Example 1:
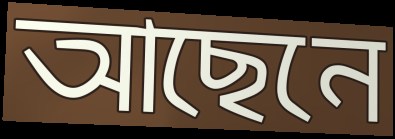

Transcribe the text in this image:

আছেনে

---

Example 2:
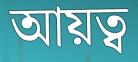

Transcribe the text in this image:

আয়ত্ব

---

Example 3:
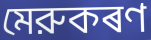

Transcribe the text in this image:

মেৰুকৰণ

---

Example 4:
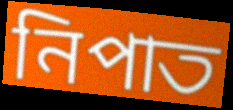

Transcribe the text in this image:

নিপাত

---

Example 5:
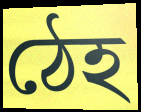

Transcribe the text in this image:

ঠেহ